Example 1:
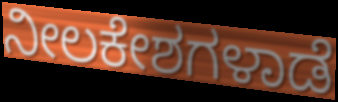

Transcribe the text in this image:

ನೀಲಕೇಶಗಳಾಡೆ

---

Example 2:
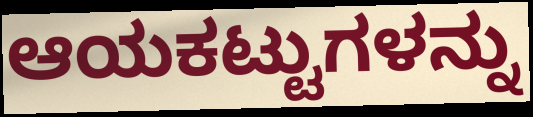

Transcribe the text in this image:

ಆಯಕಟ್ಟುಗಳನ್ನು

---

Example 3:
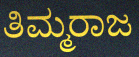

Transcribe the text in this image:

ತಿಮ್ಮರಾಜ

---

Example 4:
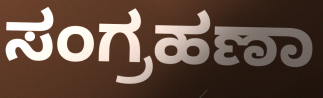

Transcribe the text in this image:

ಸಂಗ್ರಹಣಾ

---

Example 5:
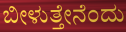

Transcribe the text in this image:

ಬೀಳುತ್ತೇನೆಂದು